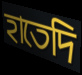
হাতেদি